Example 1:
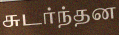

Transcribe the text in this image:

சுடர்ந்தன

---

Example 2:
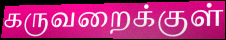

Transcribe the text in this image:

கருவறைக்குள்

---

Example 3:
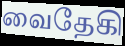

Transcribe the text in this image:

வைதேகி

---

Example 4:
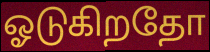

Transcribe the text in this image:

ஓடுகிறதோ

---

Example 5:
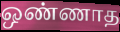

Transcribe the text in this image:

ஒண்ணாத